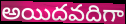
అయిదవదిగా